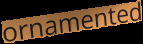
ornamented